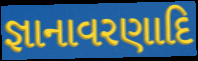
જ્ઞાનાવરણાદિ